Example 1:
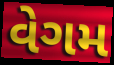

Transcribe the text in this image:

વેગમ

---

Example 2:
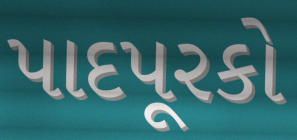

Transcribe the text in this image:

પાદપૂરકો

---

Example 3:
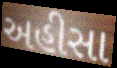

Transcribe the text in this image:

અહીસા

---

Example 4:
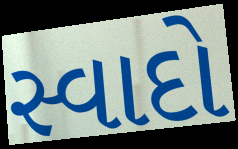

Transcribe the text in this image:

સ્વાદો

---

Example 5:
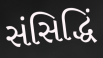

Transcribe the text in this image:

સંસિદ્ધિં